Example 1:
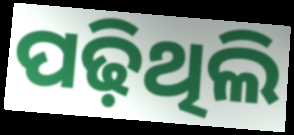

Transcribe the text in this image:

ପଢ଼ିଥିଲି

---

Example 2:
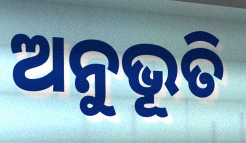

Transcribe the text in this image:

ଅନୁଭୂତି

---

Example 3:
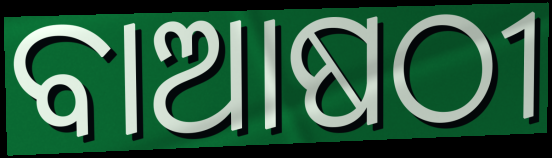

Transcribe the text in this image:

ବାଆଷଠୀ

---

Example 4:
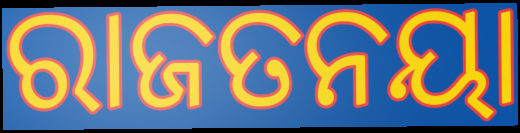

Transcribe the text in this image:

ରାଜତନୟା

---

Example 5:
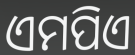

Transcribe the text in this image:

ଏମପିଏ